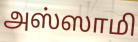
அஸ்ஸாமி